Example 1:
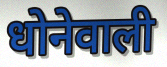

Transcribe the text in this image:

धोनेवाली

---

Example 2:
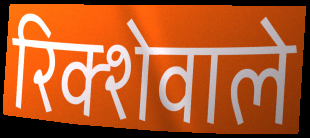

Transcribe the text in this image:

रिक्‍शेवाले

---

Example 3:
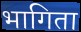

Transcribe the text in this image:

भागिता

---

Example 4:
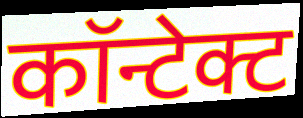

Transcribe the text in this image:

कॉन्टेक्ट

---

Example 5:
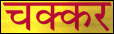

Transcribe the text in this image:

चक्कर